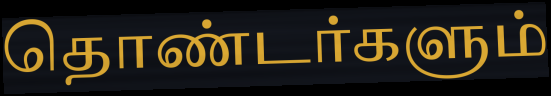
தொண்டர்களும்